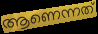
ആണെന്നത്